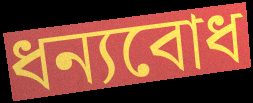
ধন্যবোধ